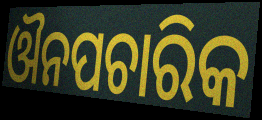
ଔନପଚାରିକ